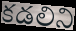
కడలిని